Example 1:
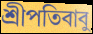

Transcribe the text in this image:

শ্রীপতিবাবু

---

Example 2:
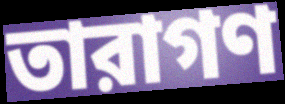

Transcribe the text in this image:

তারাগণ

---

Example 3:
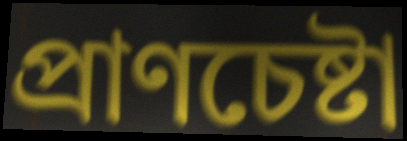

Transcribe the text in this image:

প্রাণচেষ্টা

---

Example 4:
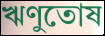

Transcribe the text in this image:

ঋণুতোষ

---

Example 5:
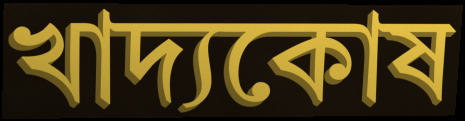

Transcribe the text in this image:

খাদ্যকোষ